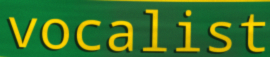
vocalist